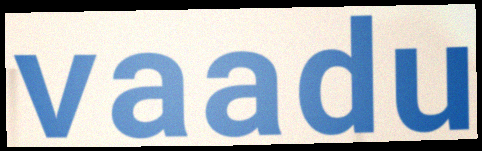
vaadu